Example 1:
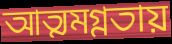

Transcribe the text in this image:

আত্মমগ্নতায়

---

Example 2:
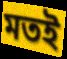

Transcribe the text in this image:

মতই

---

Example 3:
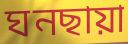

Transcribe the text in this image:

ঘনছায়া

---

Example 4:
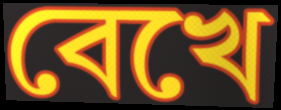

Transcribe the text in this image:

বেখে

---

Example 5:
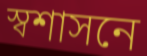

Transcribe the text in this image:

স্বশাসনে